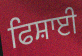
ਫਿਸ਼ਾਈ